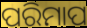
ପରିମାପ